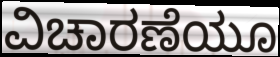
ವಿಚಾರಣೆಯೂ